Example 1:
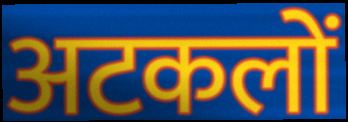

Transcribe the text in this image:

अटकलों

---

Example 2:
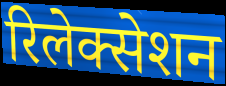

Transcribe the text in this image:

रिलेक्सेशन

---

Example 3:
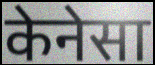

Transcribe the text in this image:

केनेसा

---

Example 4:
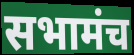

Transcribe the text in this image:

सभामंच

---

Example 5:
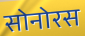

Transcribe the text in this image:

सोनोरस